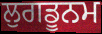
ਲੁਗਡੂਨਮ